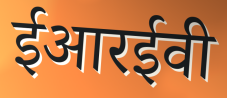
ईआरईवी